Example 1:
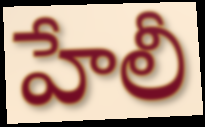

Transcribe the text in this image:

హేలీ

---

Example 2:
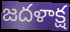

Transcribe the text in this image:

జదళాక్ష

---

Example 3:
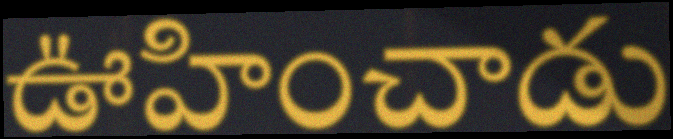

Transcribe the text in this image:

ఊహించాడు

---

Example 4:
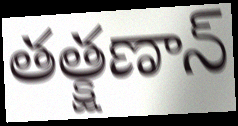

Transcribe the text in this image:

తత్క్షణాన్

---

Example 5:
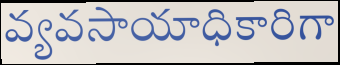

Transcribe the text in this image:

వ్యవసాయాధికారిగా